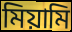
মিয়ামি